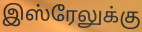
இஸ்ரேலுக்கு